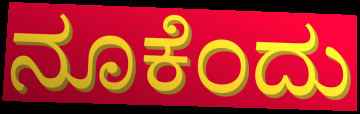
ನೂಕೆಂದು